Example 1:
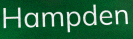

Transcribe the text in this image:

Hampden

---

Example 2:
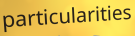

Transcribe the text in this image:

particularities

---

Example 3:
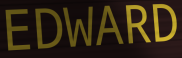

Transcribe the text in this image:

EDWARD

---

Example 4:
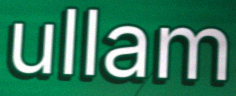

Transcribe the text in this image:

ullam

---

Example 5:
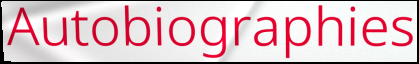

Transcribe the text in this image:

Autobiographies